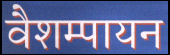
वैशम्पायन